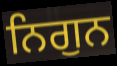
ਨਿਗੁਨ